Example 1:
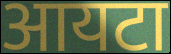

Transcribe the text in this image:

आयटा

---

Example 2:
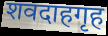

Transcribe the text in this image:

शवदाहगृह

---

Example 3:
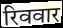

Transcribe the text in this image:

रिववार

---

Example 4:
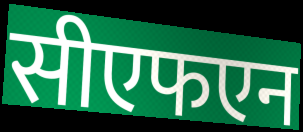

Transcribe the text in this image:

सीएफएन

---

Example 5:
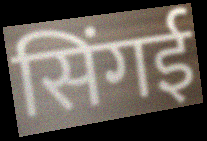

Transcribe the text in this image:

सिंगई